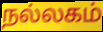
நல்லகம்